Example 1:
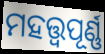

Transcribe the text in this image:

ମହତ୍ତ୍ଵପୂର୍ଣ୍ଣ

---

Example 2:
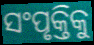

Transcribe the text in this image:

ସଂପୃକ୍ତିକୁ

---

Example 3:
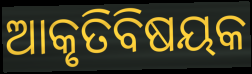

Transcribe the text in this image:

ଆକୃତିବିଷୟକ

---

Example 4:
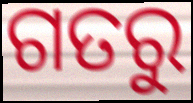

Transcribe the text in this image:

ଗତରୁ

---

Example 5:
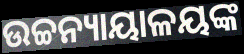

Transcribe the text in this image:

ଉଚ୍ଚନ୍ୟାୟାଳୟଙ୍କ